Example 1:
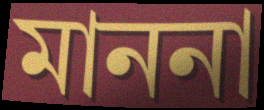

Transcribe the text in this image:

মাননা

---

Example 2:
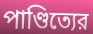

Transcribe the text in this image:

পাণ্ডিত্যের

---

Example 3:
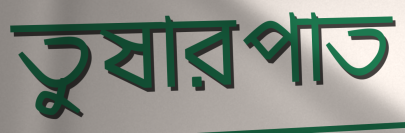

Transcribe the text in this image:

তুষারপাত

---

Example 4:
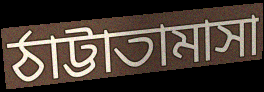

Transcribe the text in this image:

ঠাট্টাতামাসা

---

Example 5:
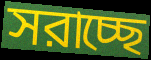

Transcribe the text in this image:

সরাচ্ছে